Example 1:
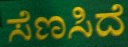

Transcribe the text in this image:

ಸೆಣಸಿದೆ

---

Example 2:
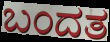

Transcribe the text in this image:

ಬಂದತ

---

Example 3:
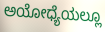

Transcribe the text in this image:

ಅಯೋಧ್ಯೆಯಲ್ಲೂ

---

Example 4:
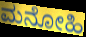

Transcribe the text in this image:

ಮನೋಹಿ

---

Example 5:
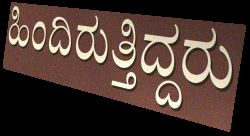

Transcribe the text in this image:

ಹಿಂದಿರುತ್ತಿದ್ದರು